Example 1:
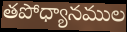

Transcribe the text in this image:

తపోధ్యానముల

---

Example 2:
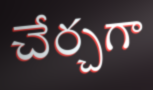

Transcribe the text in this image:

చేర్చగా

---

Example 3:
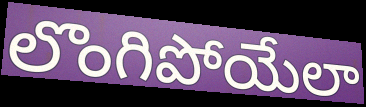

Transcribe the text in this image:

లొంగిపోయేలా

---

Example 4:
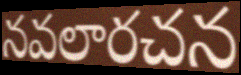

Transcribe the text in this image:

నవలారచన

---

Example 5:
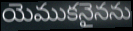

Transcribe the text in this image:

యెముకనైనను